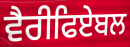
ਵੈਰੀਫਿਏਬਲ